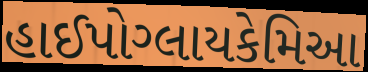
હાઈપોગ્લાયકેમિઆ